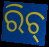
ରିଚ୍